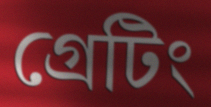
গ্রেটিং